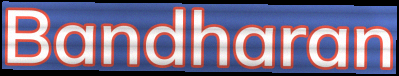
Bandharan